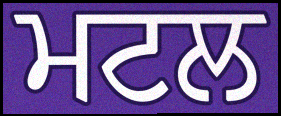
ਮਟਲ